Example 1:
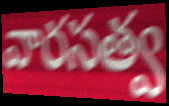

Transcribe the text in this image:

వారసత్వ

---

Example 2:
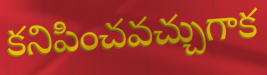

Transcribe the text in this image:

కనిపించవచ్చుగాక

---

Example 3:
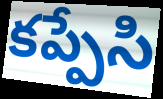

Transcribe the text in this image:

కప్పేసి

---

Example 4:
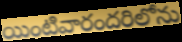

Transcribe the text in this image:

యింటివారందరిలోను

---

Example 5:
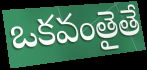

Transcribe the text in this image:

ఒకవంతైతే